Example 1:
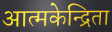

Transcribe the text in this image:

आत्मकेन्द्रिता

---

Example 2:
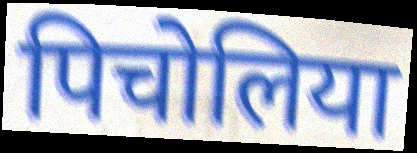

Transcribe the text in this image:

पिचोलिया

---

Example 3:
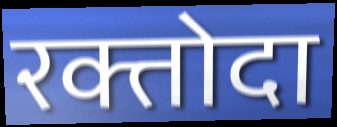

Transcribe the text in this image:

रक्तोदा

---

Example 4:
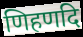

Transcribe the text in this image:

णिहणदि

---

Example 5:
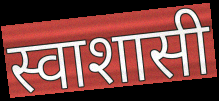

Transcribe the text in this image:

स्वाशासी